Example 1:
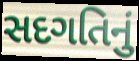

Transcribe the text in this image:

સદગતિનું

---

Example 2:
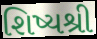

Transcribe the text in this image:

શિષ્યશ્રી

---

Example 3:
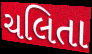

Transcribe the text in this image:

ચલિતા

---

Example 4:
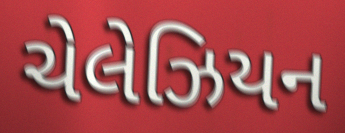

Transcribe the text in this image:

ચેલેઝિયન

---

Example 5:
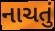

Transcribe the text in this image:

નાચતું